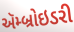
ઍમ્બ્રોઇડરી